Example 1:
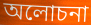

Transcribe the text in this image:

অলোচনা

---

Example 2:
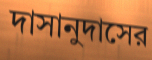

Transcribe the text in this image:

দাসানুদাসের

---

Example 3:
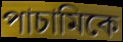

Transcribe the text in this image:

পাচামিকে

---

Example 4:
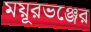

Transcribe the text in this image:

ময়ূরভঞ্জের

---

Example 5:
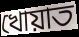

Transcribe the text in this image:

খোয়াত